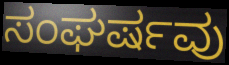
ಸಂಘರ್ಷವು